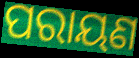
ପରାୟଣ